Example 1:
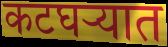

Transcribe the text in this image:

कटघऱ्यात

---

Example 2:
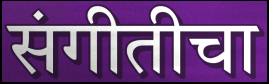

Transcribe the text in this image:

संगीतीचा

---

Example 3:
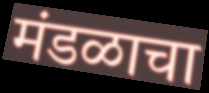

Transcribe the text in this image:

मंडळाचा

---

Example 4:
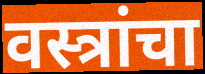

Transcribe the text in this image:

वस्त्रांचा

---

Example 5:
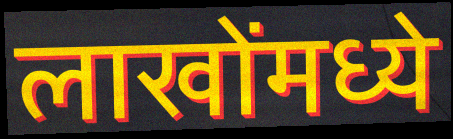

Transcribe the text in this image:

लाखोंमध्ये